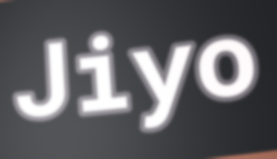
Jiyo